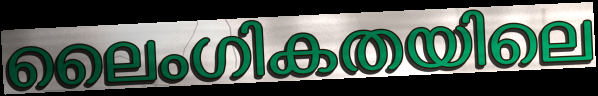
ലൈംഗികതയിലെ